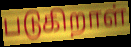
படுகிறாள்